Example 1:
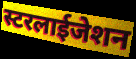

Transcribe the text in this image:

स्टरलाईजेशन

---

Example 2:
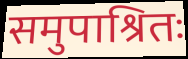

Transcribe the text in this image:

समुपाश्रितः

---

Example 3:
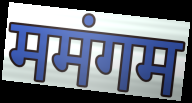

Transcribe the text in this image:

ममंगम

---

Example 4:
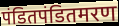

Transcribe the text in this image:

पंडितपंडितमरण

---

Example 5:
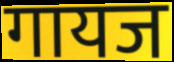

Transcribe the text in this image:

गायज